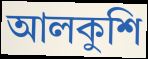
আলকুশি